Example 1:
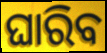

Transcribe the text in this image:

ଘାରିବ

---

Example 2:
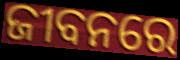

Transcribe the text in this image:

ଜୀବନରେ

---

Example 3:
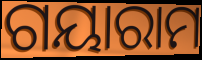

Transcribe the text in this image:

ଗୟାରାମ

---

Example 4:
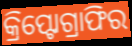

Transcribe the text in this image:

କ୍ରିପ୍ଟୋଗ୍ରାଫିର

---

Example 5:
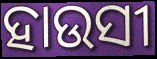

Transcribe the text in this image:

ହାଉସୀ